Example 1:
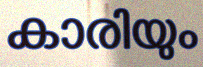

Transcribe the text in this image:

കാരിയും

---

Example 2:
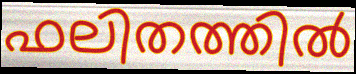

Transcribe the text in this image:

ഫലിതത്തിൽ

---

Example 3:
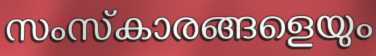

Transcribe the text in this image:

സംസ്‌കാരങ്ങളെയും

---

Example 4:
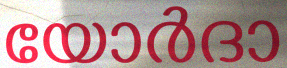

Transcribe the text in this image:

യോർദാ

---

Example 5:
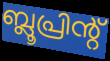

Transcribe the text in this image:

ബ്ലൂപ്രിന്റ്